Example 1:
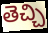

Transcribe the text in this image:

తెచ్చి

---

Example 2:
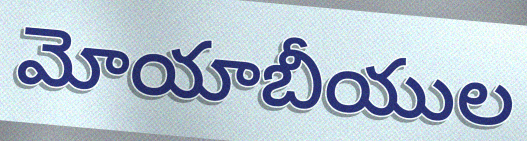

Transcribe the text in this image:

మోయాబీయుల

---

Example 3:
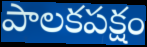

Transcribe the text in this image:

పాలకపక్షం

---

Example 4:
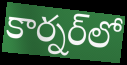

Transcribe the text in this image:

కార్నర్‌లో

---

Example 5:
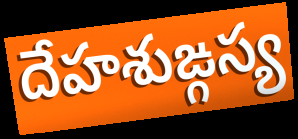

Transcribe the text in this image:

దేహశుఙ్గస్య